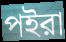
পইরা